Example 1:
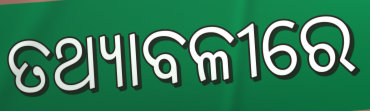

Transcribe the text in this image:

ତଥ୍ୟାବଳୀରେ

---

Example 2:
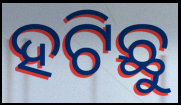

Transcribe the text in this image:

ହଟିଛୁ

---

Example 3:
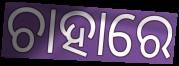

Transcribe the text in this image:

ଚାହାରେ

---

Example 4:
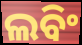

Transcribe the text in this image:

ଲବିଂ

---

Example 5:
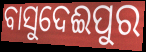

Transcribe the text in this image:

ବାସୁଦେଈପୁର